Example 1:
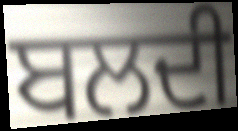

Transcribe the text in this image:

ਬਲਦੀ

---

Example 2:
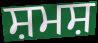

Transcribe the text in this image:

ਸ਼ਮਸ਼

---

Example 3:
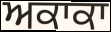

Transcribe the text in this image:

ਅਕਾਕਾ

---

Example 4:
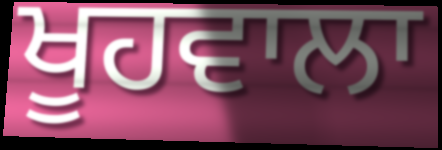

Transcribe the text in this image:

ਖੂਹਵਾਲਾ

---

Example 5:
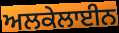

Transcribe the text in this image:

ਅਲਕੇਲਾਈਨ